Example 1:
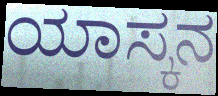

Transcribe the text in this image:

ಯಾಸ್ಕನ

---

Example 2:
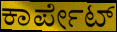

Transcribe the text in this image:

ಕಾರ್ಪೇಟ್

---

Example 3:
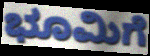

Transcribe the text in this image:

ಭೂಮಿಗೆ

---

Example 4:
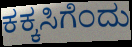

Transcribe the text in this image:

ಕಕ್ಕಸಿಗೆಂದು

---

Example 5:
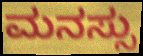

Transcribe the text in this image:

ಮನಸ್ಸು